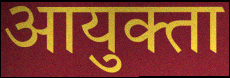
आयुक्ता